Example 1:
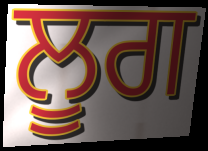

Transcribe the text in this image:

ਲੂਗ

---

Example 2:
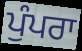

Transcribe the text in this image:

ਪੁੰਪਰਾ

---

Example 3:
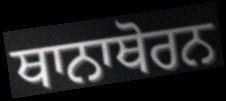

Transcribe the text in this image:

ਥਾਨਾਥੋਰਨ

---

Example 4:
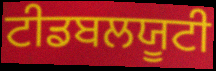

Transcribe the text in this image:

ਟੀਡਬਲਯੂਟੀ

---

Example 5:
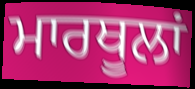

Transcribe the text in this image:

ਮਾਰਥੂਲਾਂ